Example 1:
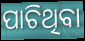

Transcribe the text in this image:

ପାଚିଥିବା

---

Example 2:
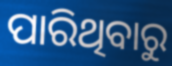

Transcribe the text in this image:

ପାରିଥିବାରୁ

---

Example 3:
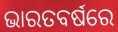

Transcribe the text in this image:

ଭାରତବର୍ଷରେ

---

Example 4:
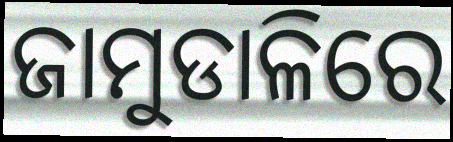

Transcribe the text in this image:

ଜାମୁଡାଳିରେ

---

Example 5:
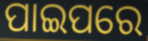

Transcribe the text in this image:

ପାଇପରେ